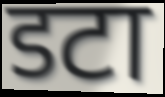
डटा